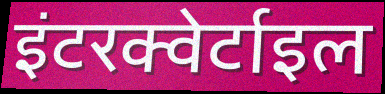
इंटरक्वेर्टाइल